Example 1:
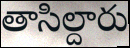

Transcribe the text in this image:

తాసిల్దారు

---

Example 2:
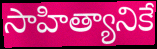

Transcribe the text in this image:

సాహిత్యానికే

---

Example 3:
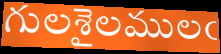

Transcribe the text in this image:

గులశైలములఁ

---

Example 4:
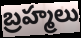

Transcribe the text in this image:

బ్రహ్మలు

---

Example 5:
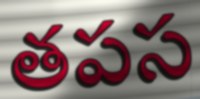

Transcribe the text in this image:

తపస